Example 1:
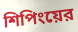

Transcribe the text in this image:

শিপিংয়ের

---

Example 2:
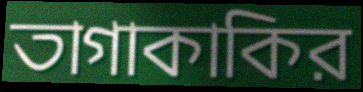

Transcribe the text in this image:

তাগাকাকির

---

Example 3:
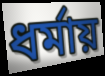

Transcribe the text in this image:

ধর্মায়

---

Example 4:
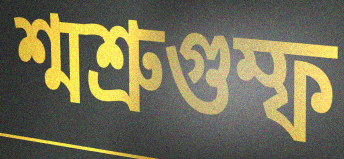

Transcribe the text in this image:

শ্মশ্রুগুম্ফ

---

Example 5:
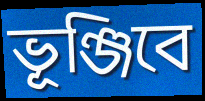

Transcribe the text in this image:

ভূঞ্জিবে